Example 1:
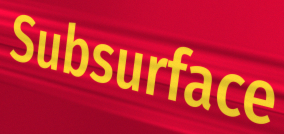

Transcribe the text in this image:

Subsurface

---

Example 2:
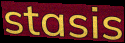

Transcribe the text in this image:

stasis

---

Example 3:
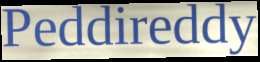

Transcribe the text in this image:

Peddireddy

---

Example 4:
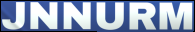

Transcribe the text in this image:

JNNURM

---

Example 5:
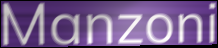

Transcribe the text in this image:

Manzoni